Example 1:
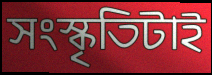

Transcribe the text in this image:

সংস্কৃতিটাই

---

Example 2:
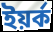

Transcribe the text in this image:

ইয়র্ক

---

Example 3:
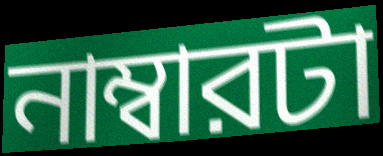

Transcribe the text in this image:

নাম্বারটা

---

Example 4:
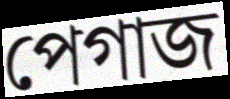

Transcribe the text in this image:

পেগাজ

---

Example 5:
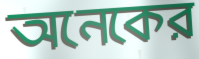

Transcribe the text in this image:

অনেকের